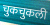
चुकचुकली